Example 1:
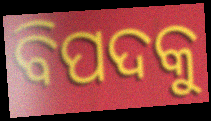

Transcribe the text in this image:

ବିପଦକୁ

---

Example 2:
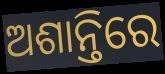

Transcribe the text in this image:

ଅଶାନ୍ତିରେ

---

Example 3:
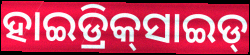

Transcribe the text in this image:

ହାଇଡ୍ରିକ୍‌ସାଇଡ୍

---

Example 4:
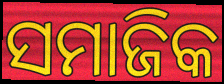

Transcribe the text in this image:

ସମାଜିକ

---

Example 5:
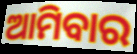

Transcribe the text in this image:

ଆମିବାର